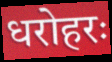
धरोहरः